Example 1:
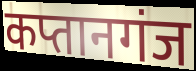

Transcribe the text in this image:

कप्तानगंज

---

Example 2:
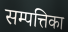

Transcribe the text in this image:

सम्पत्तिका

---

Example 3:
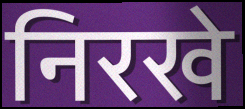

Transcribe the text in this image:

निरखे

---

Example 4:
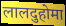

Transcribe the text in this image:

लालदुहोमा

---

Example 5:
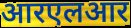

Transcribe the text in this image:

आरएलआर